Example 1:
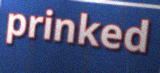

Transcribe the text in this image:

prinked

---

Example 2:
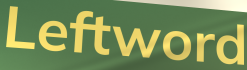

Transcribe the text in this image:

Leftword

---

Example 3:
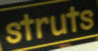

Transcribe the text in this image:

struts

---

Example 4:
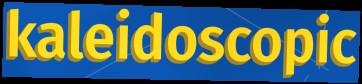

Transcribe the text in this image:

kaleidoscopic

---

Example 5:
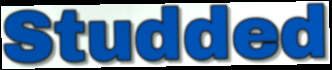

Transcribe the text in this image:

Studded